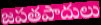
జపతపాదులు